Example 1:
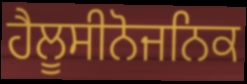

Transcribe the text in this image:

ਹੈਲੂਸੀਨੋਜਨਿਕ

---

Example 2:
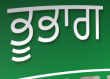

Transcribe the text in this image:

ਭੂਭਾਗ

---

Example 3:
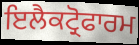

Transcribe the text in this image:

ਇਲੈਕਟ੍ਰੋਫਾਰਮ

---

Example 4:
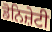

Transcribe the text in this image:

ਡੋਨਿਜ਼ੇਟੀ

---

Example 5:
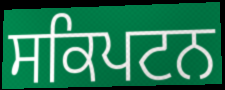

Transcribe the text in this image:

ਸਕਿਪਟਨ